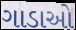
ગાડાઓ